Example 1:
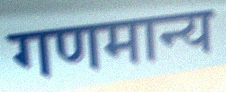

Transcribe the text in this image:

गणमान्य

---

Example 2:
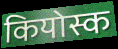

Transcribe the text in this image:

कियोस्क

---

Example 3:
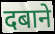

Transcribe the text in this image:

दबाने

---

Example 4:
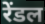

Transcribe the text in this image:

रेंडल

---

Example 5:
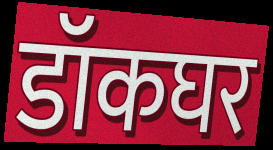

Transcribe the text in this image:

डॉकघर